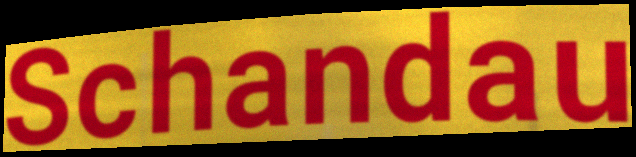
Schandau